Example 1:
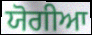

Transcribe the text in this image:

ਯੋਗੀਆ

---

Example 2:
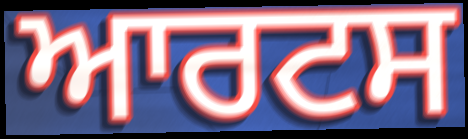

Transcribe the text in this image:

ਆਰਟਸ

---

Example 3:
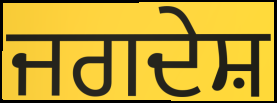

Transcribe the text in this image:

ਜਗਦੇਸ਼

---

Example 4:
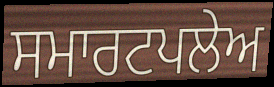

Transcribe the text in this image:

ਸਮਾਰਟਪਲੇਅ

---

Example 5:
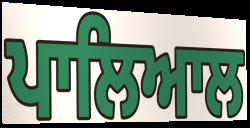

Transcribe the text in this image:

ਪਾਲਿਆਲ